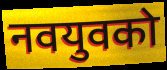
नवयुवको